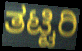
ತಟ್ಟಿರಿ